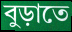
বুড়াতে